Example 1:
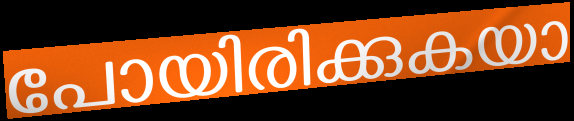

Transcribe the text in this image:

പോയിരിക്കുകയാ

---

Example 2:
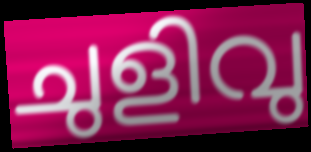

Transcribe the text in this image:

ചുളിവു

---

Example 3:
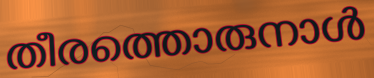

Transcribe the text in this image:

തീരത്തൊരുനാൾ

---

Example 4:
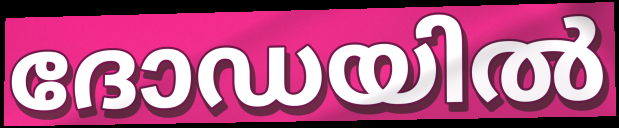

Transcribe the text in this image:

ദോഡയിൽ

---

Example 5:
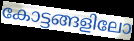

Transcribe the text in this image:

കോട്ടങ്ങളിലോ